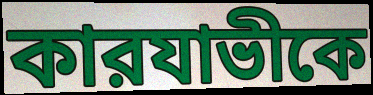
কারযাভীকে